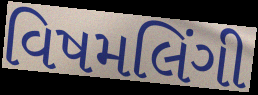
વિષમલિંગી